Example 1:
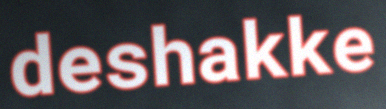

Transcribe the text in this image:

deshakke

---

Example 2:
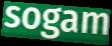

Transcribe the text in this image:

sogam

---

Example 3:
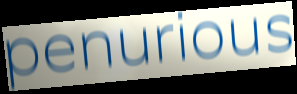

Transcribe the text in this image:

penurious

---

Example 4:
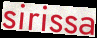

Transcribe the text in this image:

sirissa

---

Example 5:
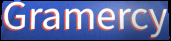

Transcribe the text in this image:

Gramercy